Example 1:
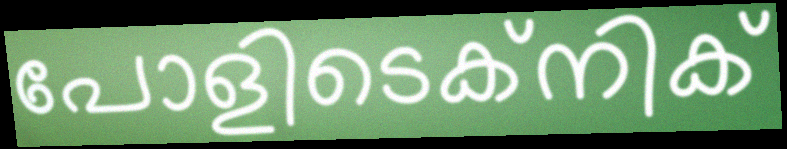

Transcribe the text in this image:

പോളിടെക്നിക്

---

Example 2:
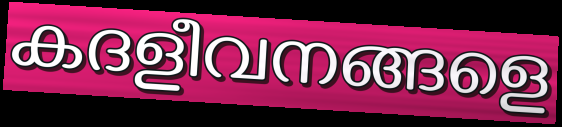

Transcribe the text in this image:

കദളീവനങ്ങളെ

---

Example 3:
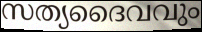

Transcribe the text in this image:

സത്യദൈവവും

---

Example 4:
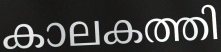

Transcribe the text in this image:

കാലകത്തി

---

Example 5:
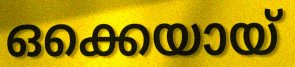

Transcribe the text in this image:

ഒക്കെയായ്